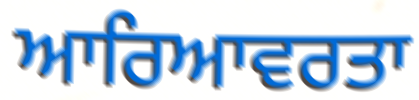
ਆਰਿਆਵਰਤਾ